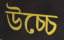
উচ্চে